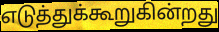
எடுத்துக்கூறுகின்றது